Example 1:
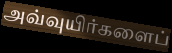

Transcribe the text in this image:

அவ்வுயிர்களைப்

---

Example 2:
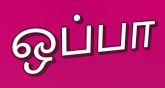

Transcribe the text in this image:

ஒப்பா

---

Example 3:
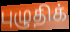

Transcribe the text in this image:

புழுதிக்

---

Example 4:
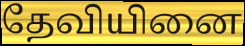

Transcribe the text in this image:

தேவியினை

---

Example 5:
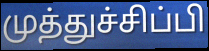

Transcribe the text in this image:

முத்துச்சிப்பி